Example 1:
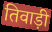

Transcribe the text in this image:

तिवाड़ी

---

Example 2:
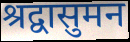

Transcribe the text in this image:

श्रद्वासुमन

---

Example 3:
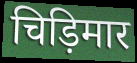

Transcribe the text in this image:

चिड़िमार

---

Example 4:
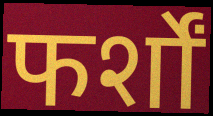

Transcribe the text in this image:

फर्शों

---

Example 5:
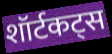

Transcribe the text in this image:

शॉर्टकट्स